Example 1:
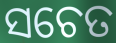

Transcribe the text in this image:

ସଚେତ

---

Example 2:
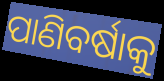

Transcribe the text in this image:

ପାଣିବର୍ଷାକୁ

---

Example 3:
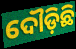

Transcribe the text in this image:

ଦୌଡ଼ିଛି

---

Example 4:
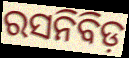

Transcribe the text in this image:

ରସନିବିଡ଼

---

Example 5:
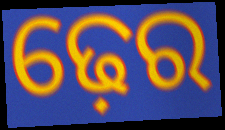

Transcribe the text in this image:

ଢ଼େର